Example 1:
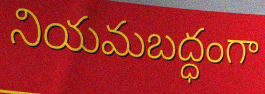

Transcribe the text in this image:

నియమబద్ధంగా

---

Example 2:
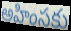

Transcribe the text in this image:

అహింసకు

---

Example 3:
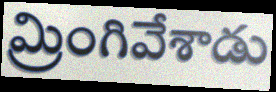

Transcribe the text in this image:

మ్రింగివేశాడు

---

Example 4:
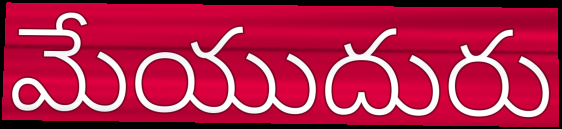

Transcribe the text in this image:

మేయుదురు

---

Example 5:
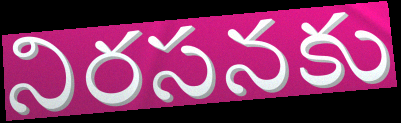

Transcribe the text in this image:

నిరసనకు